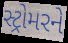
સ્ટ્રોમરને